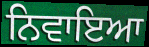
ਨਿਵਾਇਆ